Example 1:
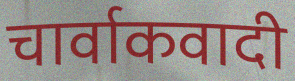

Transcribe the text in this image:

चार्वाकवादी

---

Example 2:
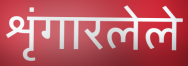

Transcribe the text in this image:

शृंगारलेले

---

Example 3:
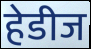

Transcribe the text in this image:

हेडीज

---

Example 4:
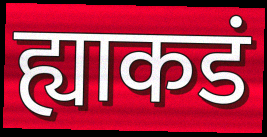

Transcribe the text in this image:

ह्याकडं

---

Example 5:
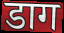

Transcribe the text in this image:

डाग